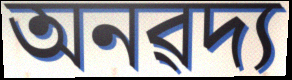
অনৱদ্য